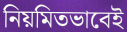
নিয়মিতভাবেই